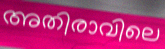
അതിരാവിലെ